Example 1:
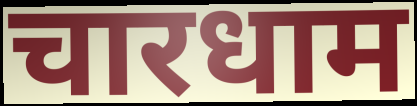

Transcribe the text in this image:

चारधाम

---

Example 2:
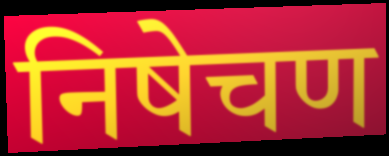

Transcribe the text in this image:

निषेचण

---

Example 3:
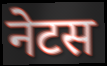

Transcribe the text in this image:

नेटस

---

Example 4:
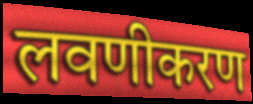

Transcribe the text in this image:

लवणीकरण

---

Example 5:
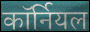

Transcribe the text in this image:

कॉर्नियल